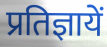
प्रतिज्ञायें